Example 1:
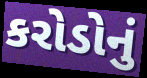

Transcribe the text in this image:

કરોડોનું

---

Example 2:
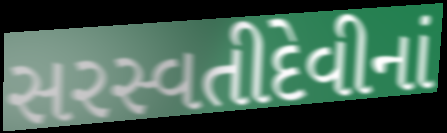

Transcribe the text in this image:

સરસ્વતીદેવીનાં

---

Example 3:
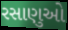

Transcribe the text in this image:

રસાણુઓ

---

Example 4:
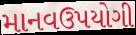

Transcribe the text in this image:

માનવઉપયોગી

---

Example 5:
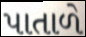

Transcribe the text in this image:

પાતાળે